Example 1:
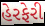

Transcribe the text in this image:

હેરફેરી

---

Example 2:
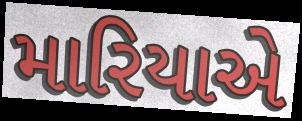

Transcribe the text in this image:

મારિયાએ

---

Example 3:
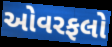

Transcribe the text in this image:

ઓવરફલો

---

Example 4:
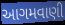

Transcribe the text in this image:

આગમવાણી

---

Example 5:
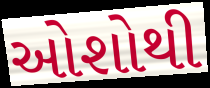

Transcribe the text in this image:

ઓશોથી